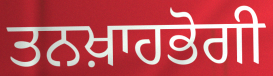
ਤਨਖ਼ਾਹਭੋਗੀ